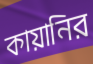
কায়ানির